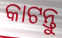
କାଟନ୍ତୁ